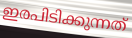
ഇരപിടിക്കുന്നത്